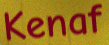
Kenaf